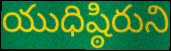
యుధిష్ఠిరుని